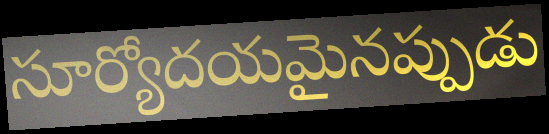
సూర్యోదయమైనప్పుడు